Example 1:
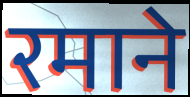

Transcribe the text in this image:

रमाने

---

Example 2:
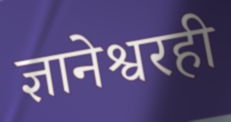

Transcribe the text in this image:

ज्ञानेश्वरही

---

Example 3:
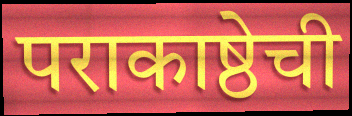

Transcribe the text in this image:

पराकाष्ठेची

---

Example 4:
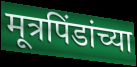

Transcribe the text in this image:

मूत्रपिंडांच्या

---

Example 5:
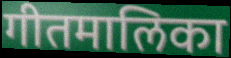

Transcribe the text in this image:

गीतमालिका